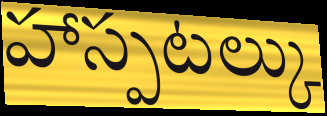
హాస్పటల్కు